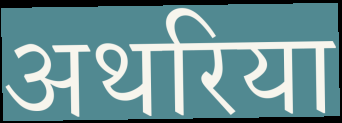
अथरिया